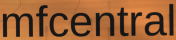
mfcentral